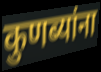
कुणब्यांना